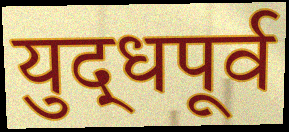
युद्धपूर्व